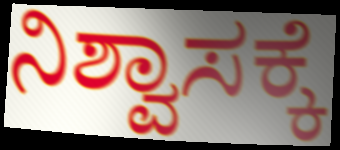
ನಿಶ್ವಾಸಕ್ಕೆ